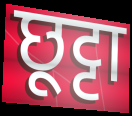
छूट्टा